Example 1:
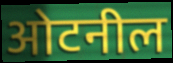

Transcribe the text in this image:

ओटनील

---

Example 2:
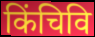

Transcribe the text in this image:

किंचिवि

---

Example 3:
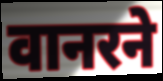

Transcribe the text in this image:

वानरने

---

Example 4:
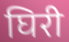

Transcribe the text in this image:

घिरी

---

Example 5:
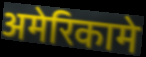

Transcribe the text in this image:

अमेरिकामे